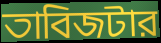
তাবিজটার